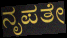
ನೃಪತೇ